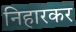
निहारकर